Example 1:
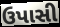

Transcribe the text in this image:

ઉપાસી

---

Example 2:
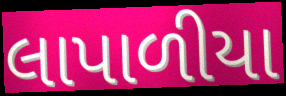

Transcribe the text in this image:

લાપાળીયા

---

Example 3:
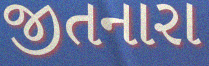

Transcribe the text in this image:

જીતનારા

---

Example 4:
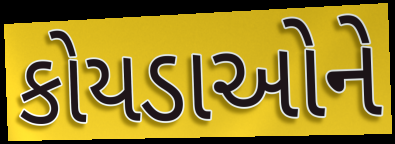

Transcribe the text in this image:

કોયડાઓને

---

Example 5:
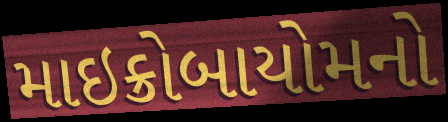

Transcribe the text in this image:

માઇક્રોબાયોમનો